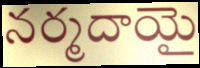
నర్మదాయై